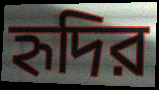
হৃদির